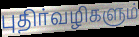
புதிர்வழிகளும்